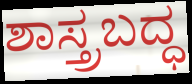
ಶಾಸ್ತ್ರಬದ್ಧ